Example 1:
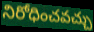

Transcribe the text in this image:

నిరోధించవచ్చు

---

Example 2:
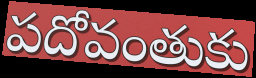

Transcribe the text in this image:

పదోవంతుకు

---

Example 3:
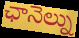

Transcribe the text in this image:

ఛానెల్ను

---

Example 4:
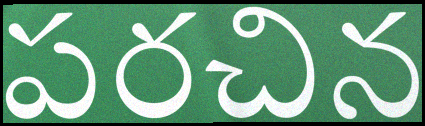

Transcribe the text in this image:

పరచిన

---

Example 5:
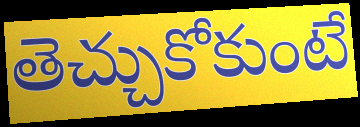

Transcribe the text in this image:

తెచ్చుకోకుంటే